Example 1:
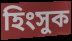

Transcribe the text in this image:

হিংসুক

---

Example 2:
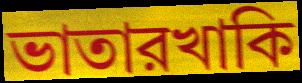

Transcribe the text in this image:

ভাতারখাকি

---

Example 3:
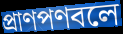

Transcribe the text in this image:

প্রাণপণবলে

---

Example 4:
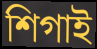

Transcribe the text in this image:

শিগাই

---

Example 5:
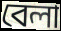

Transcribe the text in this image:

বেলা